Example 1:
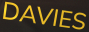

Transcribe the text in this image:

DAVIES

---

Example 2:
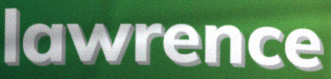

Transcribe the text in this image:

lawrence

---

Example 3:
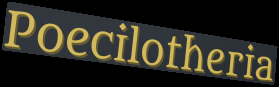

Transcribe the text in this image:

Poecilotheria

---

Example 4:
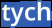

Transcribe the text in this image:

tych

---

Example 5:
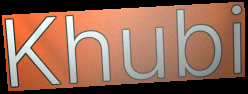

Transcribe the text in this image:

Khubi